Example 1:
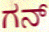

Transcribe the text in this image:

ಗನ್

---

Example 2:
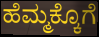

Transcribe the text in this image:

ಹೆಮ್ಮಕ್ಕೊಗೆ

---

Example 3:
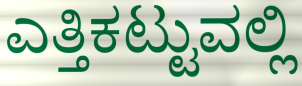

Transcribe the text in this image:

ಎತ್ತಿಕಟ್ಟುವಲ್ಲಿ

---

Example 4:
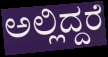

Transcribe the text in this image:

ಅಲ್ಲಿದ್ದರೆ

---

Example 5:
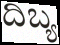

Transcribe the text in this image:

ದಿಬ್ಯ